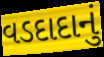
વડદાદાનું